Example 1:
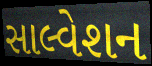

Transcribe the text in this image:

સાલ્વેશન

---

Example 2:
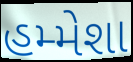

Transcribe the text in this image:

હમ્મેશા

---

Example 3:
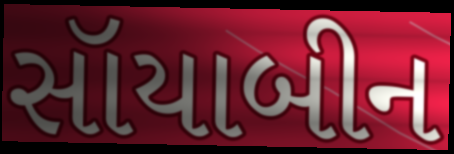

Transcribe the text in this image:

સૉયાબીન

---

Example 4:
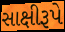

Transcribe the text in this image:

સાક્ષીરૂપે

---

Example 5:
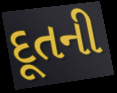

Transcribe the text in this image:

દૂતની